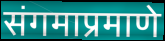
संगमाप्रमाणे